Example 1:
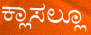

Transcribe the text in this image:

ಕ್ಲಾಸಲ್ಲೂ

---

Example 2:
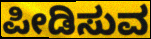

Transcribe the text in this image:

ಪೀಡಿಸುವ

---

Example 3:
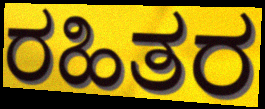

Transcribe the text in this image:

ರಹಿತರ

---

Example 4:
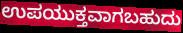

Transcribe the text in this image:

ಉಪಯುಕ್ತವಾಗಬಹುದು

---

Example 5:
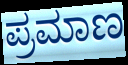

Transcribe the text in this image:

ಪ್ರಮಾಣ